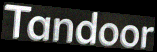
Tandoor